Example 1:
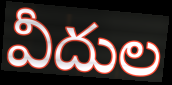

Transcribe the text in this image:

వీదుల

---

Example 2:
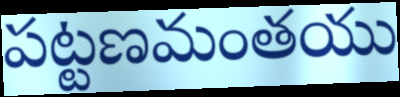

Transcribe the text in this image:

పట్టణమంతయు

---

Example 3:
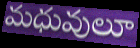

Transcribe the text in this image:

మధువులూ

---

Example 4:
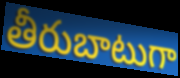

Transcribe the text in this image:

తీరుబాటుగా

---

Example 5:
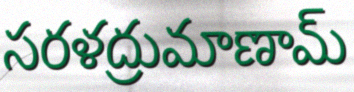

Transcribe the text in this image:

సరళద్రుమాణామ్